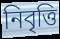
নিবৃত্তি